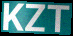
KZT